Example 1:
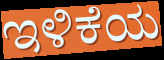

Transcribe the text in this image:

ಇಳಿಕೆಯ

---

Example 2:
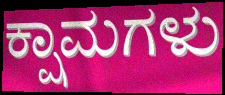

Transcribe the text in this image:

ಕ್ಷಾಮಗಳು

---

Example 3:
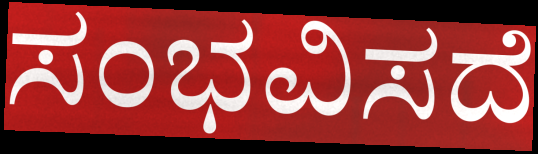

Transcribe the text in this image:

ಸಂಭವಿಸದೆ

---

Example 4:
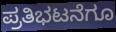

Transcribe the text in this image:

ಪ್ರತಿಭಟನೆಗೂ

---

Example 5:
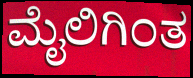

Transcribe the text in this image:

ಮೈಲಿಗಿಂತ